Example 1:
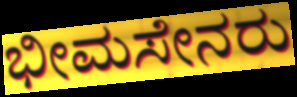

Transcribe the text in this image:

ಭೀಮಸೇನರು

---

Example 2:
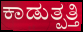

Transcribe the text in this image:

ಕಾಡುತ್ಪತ್ತಿ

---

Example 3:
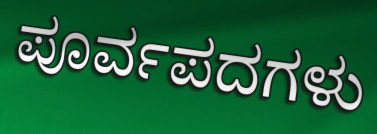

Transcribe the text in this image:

ಪೂರ್ವಪದಗಳು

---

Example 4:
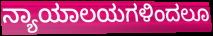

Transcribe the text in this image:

ನ್ಯಾಯಾಲಯಗಳಿಂದಲೂ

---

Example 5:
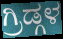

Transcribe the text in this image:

ಗ್ರಿಡ್ಗಳ